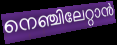
നെഞ്ചിലേറ്റാൻ